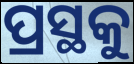
ପ୍ରସ୍ଥକୁ